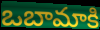
ఒబామాకి